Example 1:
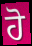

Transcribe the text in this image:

ਹੋ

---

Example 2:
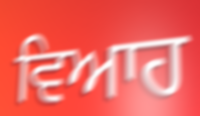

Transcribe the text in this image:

ਵਿਆਹ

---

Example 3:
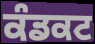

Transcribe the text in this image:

ਕੰਡਕਟ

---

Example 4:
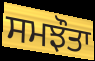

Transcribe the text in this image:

ਸਮਝੌਤਾ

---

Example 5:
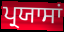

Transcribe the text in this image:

ਪ੍ਰਯਾਸਾਂ